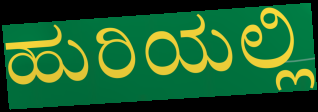
ಹುರಿಯಲ್ಲಿ